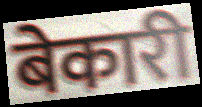
बेकारी